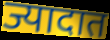
ज्यादात